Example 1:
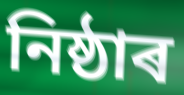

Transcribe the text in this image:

নিষ্ঠাৰ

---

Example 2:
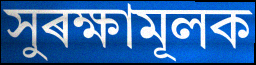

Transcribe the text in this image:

সুৰক্ষামূলক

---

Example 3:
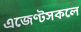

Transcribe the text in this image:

এজেণ্টসকলে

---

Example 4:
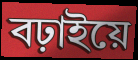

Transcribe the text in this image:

বঢ়াইয়ে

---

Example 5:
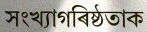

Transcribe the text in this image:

সংখ্যাগৰিষ্ঠতাক